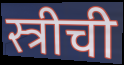
स्त्रीची